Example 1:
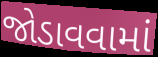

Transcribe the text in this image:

જોડાવવામાં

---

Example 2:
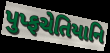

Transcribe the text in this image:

પુપ્ફચેતિયાનિ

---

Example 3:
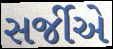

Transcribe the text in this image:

સર્જીએ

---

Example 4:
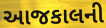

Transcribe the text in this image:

આજકાલની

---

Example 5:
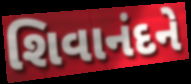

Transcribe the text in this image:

શિવાનંદને